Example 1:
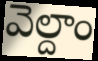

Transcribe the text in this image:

వెల్దాం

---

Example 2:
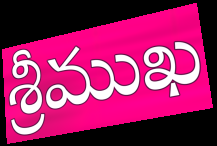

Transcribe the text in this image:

శ్రీముఖ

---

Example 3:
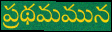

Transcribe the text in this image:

ప్రథమమున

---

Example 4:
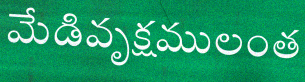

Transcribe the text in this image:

మేడివృక్షములంత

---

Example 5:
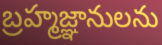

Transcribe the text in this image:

బ్రహ్మజ్ఞానులను